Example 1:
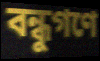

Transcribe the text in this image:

বন্ধুগণে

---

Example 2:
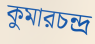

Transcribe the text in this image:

কুমারচন্দ্র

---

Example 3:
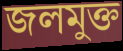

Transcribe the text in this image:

জলমুক্ত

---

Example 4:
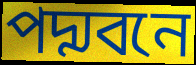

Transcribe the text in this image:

পদ্মবনে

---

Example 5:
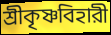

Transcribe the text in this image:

শ্রীকৃষ্ণবিহারী